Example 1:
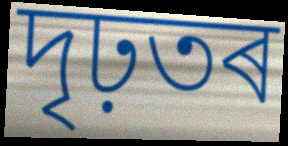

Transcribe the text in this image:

দৃঢ়তৰ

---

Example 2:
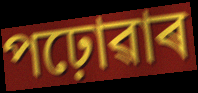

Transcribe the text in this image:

পঢ়োৱাৰ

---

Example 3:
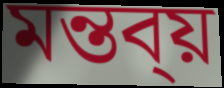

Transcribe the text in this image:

মন্তব্য়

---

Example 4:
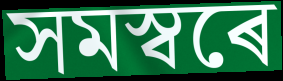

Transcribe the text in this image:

সমস্বৰে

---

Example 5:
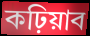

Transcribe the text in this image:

কঢ়িয়াব